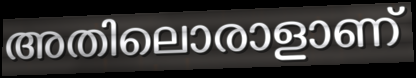
അതിലൊരാളാണ്